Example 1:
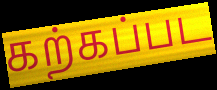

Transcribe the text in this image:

கற்கப்பட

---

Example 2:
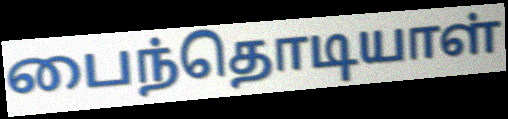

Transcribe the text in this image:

பைந்தொடியாள்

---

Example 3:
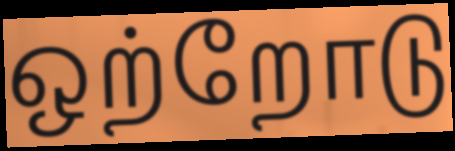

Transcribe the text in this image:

ஒற்றோடு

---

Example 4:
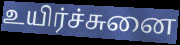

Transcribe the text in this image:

உயிர்ச்சுனை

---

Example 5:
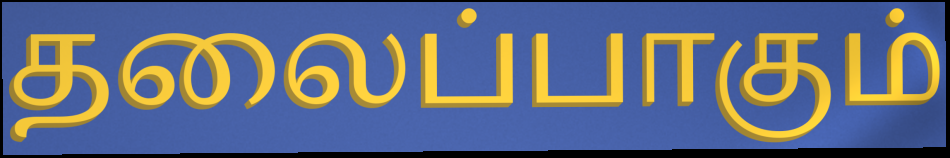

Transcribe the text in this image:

தலைப்பாகும்